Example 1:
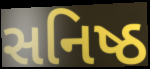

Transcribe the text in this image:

સનિષ્ઠ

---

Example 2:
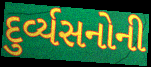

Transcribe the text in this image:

દુર્વ્યસનોની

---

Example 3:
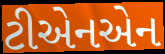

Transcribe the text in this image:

ટીએનએન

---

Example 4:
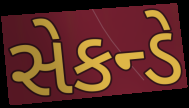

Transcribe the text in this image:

સેકન્ડે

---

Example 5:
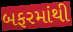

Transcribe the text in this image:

બફરમાંથી